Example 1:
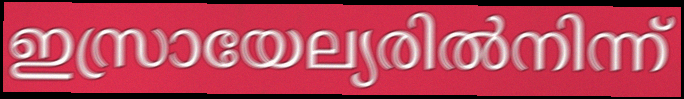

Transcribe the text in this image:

ഇസ്രായേല്യരിൽനിന്ന്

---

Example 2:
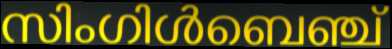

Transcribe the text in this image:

സിംഗിൾബെഞ്ച്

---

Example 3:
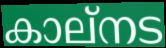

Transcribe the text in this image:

കാല്നട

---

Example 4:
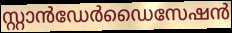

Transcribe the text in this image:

സ്റ്റാൻഡേർഡൈസേഷൻ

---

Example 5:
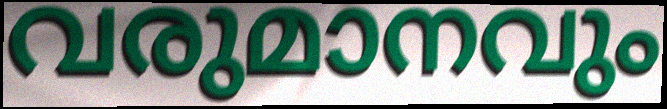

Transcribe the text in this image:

വരുമാനവും